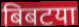
बिबटया